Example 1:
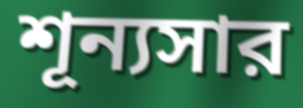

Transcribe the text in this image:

শূন্যসার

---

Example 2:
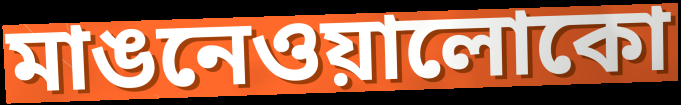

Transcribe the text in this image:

মাঙনেওয়ালোকো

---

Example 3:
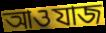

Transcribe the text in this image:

আওযাজ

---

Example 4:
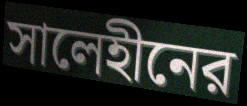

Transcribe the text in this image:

সালেহীনের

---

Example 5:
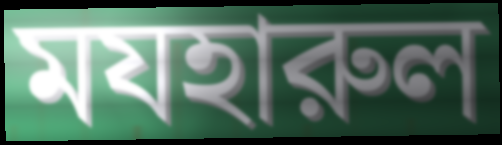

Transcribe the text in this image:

মযহারুল